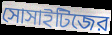
সোসাইটিজের